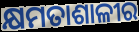
କ୍ଷମତାଶାଳୀର